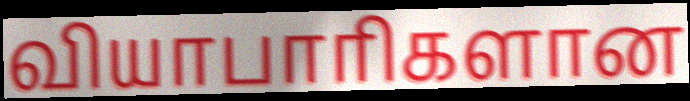
வியாபாரிகளான